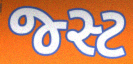
જ્સ્ટ